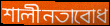
শালীনতাবোধ